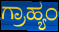
ಗ್ರಾಹ್ಯಂ